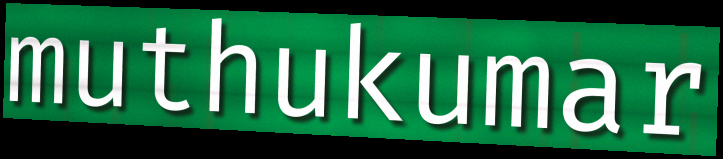
muthukumar